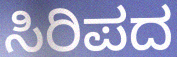
ಸಿರಿಪದ